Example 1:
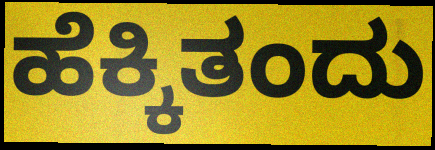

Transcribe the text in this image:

ಹೆಕ್ಕಿತಂದು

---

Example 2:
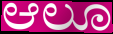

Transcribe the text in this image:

ಆಲೂ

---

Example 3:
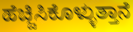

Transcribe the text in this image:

ಹೆಚ್ಚಿಸಿಕೊಳ್ಳುತ್ತಾನೆ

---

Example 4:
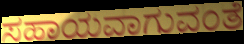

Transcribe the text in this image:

ಸಹಾಯವಾಗುವಂತೆ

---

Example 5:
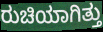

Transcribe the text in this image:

ರುಚಿಯಾಗಿತ್ತು